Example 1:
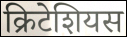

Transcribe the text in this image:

क्रिटेशियस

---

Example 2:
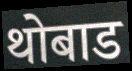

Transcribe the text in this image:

थोबाड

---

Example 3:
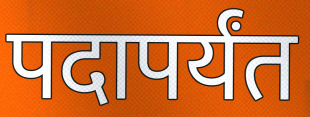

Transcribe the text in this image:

पदापर्यंत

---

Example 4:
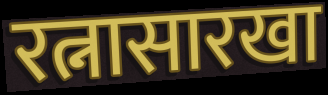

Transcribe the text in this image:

रत्नासारखा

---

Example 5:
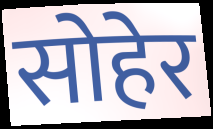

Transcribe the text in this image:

सोहेर